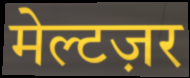
मेल्टज़र